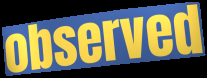
observed